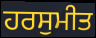
ਹਰਸੁਮੀਤ